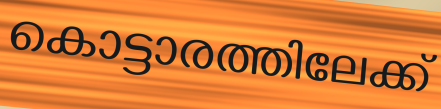
കൊട്ടാരത്തിലേക്ക്